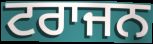
ਟਰਾਜਨ